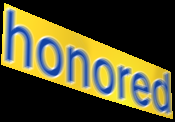
honored